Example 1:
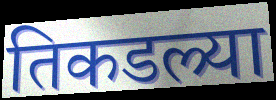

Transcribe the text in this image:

तिकडल्या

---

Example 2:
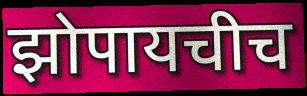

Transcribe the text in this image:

झोपायचीच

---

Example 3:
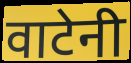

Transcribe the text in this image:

वाटेनी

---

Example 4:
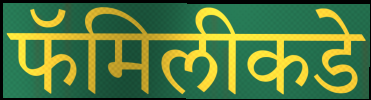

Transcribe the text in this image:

फॅमिलीकडे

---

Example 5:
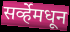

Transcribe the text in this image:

सर्व्हेमधून